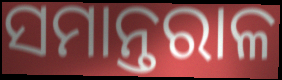
ସମାନ୍ତରାଳ